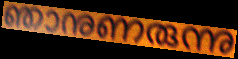
ഞാനുണരുന്നു